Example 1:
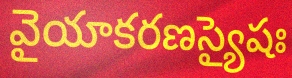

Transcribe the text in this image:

వైయాకరణస్యైషః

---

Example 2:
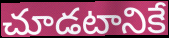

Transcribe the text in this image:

చూడటానికే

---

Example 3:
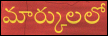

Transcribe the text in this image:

మార్కులలో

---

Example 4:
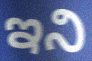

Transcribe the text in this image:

ఇని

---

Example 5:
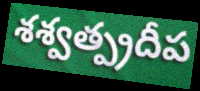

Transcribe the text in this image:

శశ్వత్ప్రదీప